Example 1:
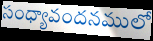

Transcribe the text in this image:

సంధ్యావందనములో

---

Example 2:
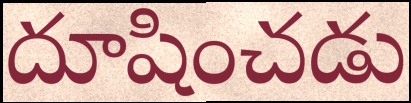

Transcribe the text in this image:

దూషించడు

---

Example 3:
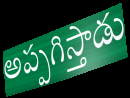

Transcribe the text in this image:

అప్పగిస్తాడు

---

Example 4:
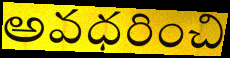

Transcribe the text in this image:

అవధరించి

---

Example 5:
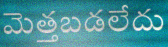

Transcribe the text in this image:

మెత్తబడలేదు